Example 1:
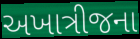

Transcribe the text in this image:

અખાત્રીજના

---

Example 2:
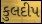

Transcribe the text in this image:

કુલદીપ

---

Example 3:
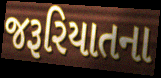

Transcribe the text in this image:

જરૂરિયાતના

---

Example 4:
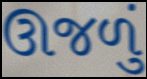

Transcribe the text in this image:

ઊજળું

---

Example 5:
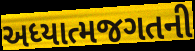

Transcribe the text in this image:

અધ્યાત્મજગતની